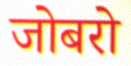
जोबरो